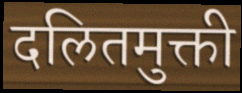
दलितमुक्ती